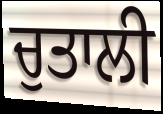
ਚੁਤਾਲੀ